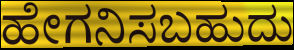
ಹೇಗನಿಸಬಹುದು